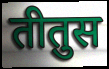
तीतुस